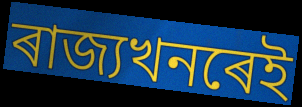
ৰাজ্যখনৰেই